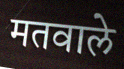
मतवाले